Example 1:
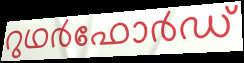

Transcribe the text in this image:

റുഥർഫോർഡ്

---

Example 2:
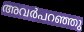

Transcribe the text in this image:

അവർപറഞ്ഞു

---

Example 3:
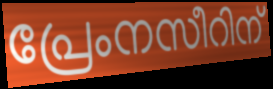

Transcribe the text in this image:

പ്രേംനസീറിന്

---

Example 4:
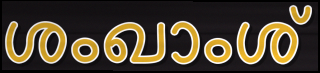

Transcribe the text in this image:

ശംഖാംശ്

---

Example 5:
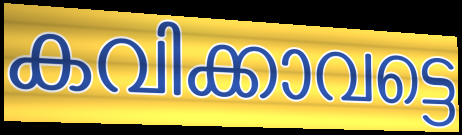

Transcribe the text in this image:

കവിക്കാവട്ടെ